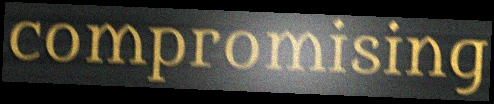
compromising